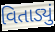
વિતાડ્યું